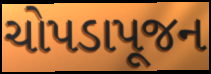
ચોપડાપૂજન